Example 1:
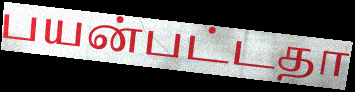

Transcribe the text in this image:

பயன்பட்டதா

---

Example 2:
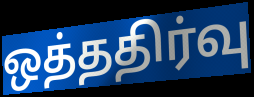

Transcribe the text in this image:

ஒத்ததிர்வு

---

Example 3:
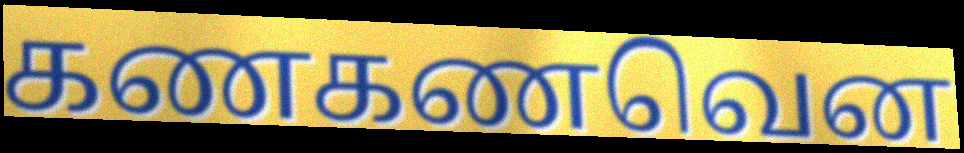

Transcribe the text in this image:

கணகணவென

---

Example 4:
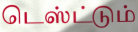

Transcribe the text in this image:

டெஸ்ட்டும்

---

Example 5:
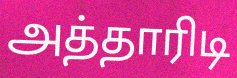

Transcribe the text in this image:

அத்தாரிடி